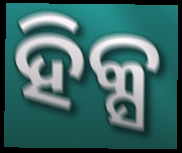
ହିକ୍ସ